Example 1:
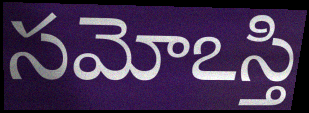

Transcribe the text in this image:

సమోఽస్తి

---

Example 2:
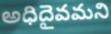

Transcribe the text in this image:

అధిదైవమని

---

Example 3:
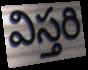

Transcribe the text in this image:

విస్తరి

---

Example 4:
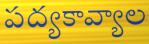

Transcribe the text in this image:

పద్యకావ్యాల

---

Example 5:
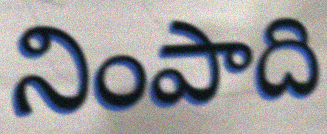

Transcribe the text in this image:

నింపాది